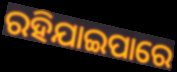
ରହିଯାଇପାରେ